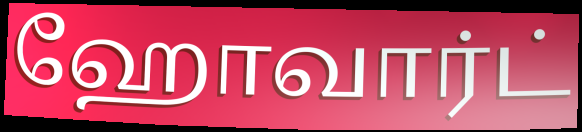
ஹோவார்ட்